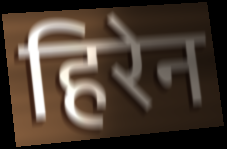
हिरेन